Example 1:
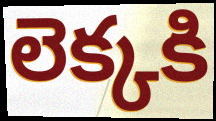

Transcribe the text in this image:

లెక్కకి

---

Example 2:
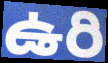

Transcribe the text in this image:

ఉరి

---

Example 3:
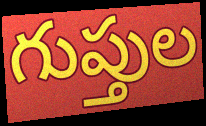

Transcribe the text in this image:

గుప్తుల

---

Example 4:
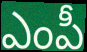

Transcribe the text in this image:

ఎంపీ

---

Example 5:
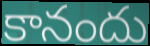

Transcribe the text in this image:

కానందు